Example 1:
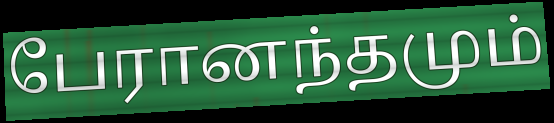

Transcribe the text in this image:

பேரானந்தமும்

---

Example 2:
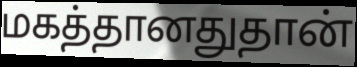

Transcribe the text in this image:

மகத்தானதுதான்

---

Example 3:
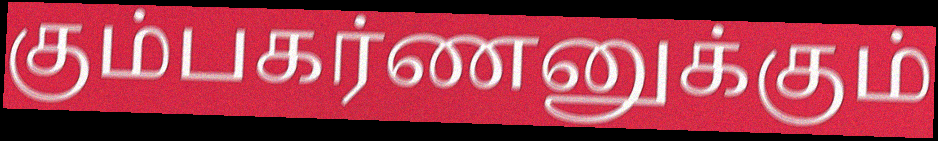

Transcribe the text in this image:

கும்பகர்ணனுக்கும்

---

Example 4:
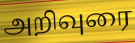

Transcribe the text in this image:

அறிவுரை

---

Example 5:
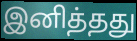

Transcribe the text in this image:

இனித்தது